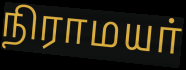
நிராமயர்